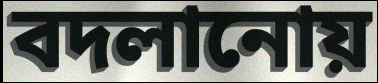
বদলানোয়